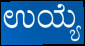
ಉಯ್ಯೆ